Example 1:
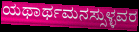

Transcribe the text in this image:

ಯಥಾರ್ಥಮನಸ್ಸುಳ್ಳವರ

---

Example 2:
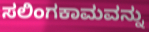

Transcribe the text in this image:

ಸಲಿಂಗಕಾಮವನ್ನು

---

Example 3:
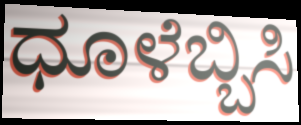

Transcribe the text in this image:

ಧೂಳೆಬ್ಬಿಸಿ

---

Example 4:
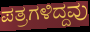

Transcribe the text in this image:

ಪತ್ರಗಳಿದ್ದವು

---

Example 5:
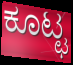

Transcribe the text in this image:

ಕೂಟ್ಟ